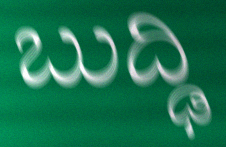
ಬುದ್ಢಿ